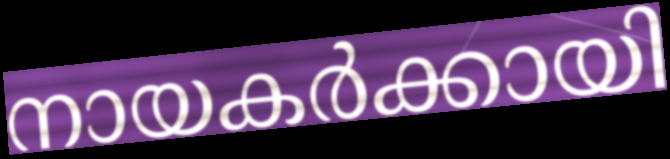
നായകർക്കായി